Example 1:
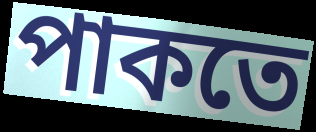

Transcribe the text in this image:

পাকতে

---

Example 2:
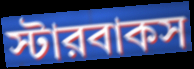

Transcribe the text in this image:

স্টারবাকস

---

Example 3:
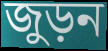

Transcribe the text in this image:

জুড়ন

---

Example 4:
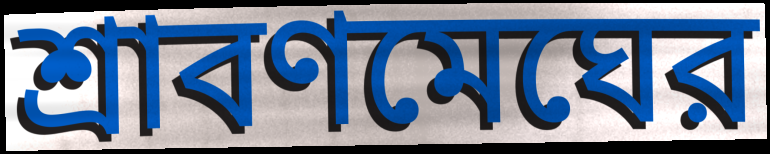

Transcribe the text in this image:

শ্রাবণমেঘের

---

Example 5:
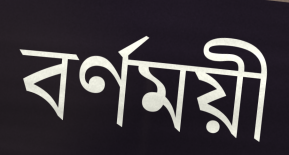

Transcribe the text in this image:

বর্ণময়ী